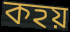
কহয়